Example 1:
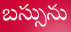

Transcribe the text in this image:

బస్సును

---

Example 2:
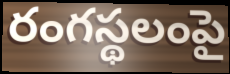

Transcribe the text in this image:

రంగస్థలంపై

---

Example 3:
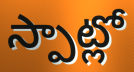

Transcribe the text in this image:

స్పాట్లో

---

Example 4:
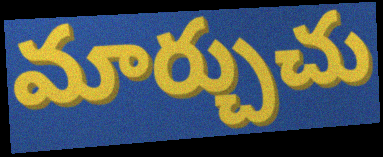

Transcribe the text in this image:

మార్చుచు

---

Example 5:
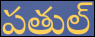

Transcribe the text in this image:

పతుల్